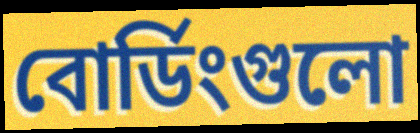
বোর্ডিংগুলো